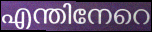
എന്തിനേറെ